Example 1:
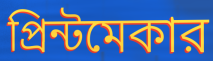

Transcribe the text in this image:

প্রিন্টমেকার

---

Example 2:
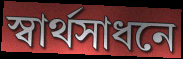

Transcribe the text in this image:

স্বার্থসাধনে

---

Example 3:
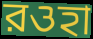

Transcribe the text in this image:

রওহা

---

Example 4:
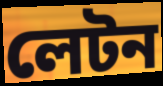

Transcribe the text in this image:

লেটন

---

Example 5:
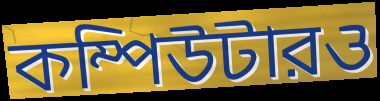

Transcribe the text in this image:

কম্পিউটারও